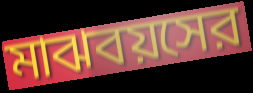
মাঝবয়সের